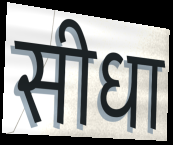
सीधा